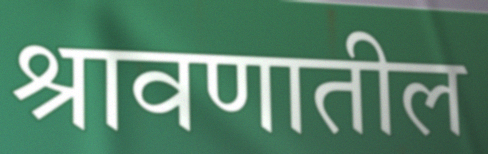
श्रावणातील